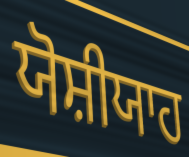
ਯੋਸ਼ੀਯਾਹ